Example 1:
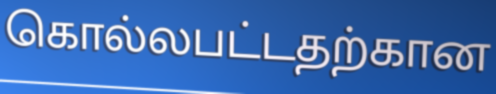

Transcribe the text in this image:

கொல்லபட்டதற்கான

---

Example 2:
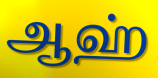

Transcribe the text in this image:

ஆஹ்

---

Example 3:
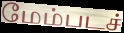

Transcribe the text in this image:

மேம்படச்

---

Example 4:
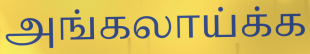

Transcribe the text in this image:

அங்கலாய்க்க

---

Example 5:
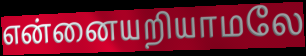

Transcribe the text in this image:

என்னையறியாமலே